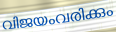
വിജയംവരിക്കും